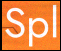
Spl